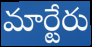
మార్టేరు